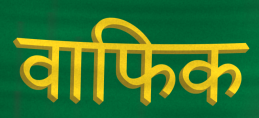
वाफिक